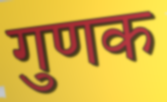
गुणक